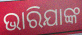
ଭାରିଯାଙ୍କ